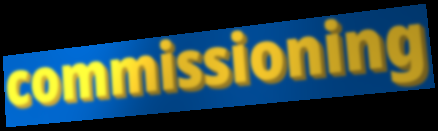
commissioning